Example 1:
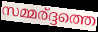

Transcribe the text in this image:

സമ്മര്ദ്ദത്തെ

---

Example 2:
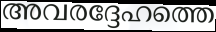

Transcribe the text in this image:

അവരദ്ദേഹത്തെ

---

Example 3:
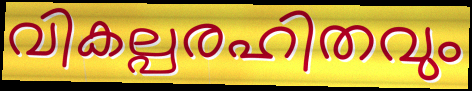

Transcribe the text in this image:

വികല്പരഹിതവും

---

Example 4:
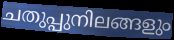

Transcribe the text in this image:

ചതുപ്പുനിലങ്ങളും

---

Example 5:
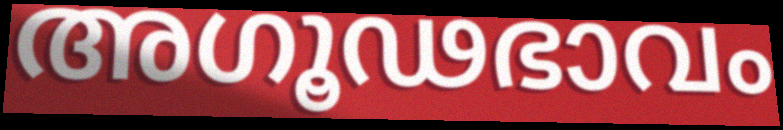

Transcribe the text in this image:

അഗൂഢഭാവം